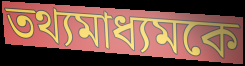
তথ্যমাধ্যমকে